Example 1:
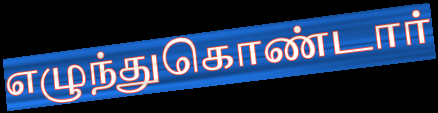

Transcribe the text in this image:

எழுந்துகொண்டார்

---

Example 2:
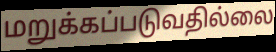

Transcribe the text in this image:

மறுக்கப்படுவதில்லை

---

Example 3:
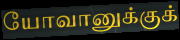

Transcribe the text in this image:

யோவானுக்குக்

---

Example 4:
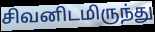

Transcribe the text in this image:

சிவனிடமிருந்து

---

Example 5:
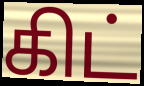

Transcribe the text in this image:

கிட்